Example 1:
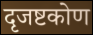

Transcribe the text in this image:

दृजष्टकोण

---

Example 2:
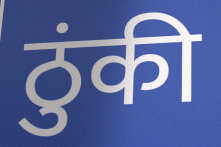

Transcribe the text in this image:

ठुंकी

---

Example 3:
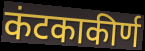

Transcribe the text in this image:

कंटकाकीर्ण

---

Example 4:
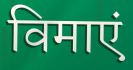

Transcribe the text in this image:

विमाएं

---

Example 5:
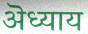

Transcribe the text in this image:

ऄध्याय